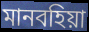
মানবহিয়া